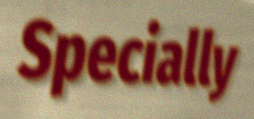
Specially